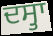
ਦਸ੍ਤਾ